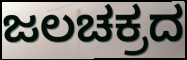
ಜಲಚಕ್ರದ